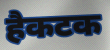
हैकटक